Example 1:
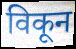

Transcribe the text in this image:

विकून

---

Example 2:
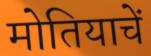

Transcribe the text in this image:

मोतियाचें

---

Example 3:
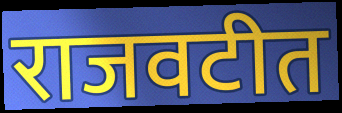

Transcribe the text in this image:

राजवटीत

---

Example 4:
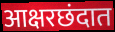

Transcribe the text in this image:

आक्षरछंदात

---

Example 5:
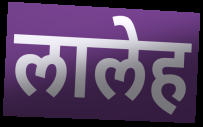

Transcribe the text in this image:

लालेह